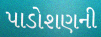
પાડોશણની